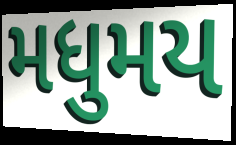
મધુમય